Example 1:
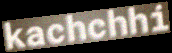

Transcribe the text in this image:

kachchhi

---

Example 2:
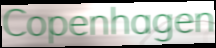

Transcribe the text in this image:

Copenhagen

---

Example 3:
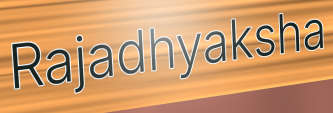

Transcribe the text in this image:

Rajadhyaksha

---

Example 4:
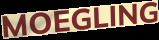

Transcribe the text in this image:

MOEGLING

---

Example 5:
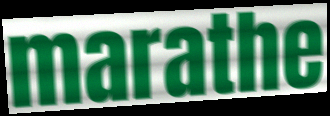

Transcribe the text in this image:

marathe